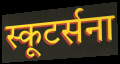
स्कूटर्सना